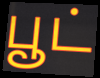
பூட்